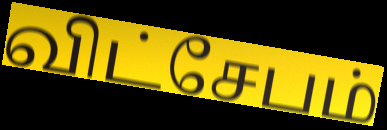
விட்சேபம்